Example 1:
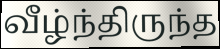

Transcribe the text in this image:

வீழ்ந்திருந்த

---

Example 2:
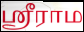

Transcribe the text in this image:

ஸ்ரீராம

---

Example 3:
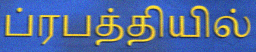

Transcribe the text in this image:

ப்ரபத்தியில்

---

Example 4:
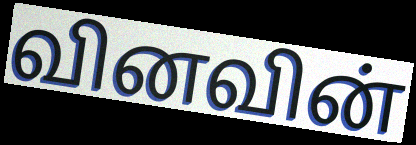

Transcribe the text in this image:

வினவின்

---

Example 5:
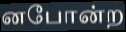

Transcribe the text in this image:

னபோன்ற